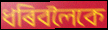
ধৰিবলৈকে